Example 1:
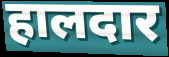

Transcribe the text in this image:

हालदार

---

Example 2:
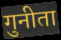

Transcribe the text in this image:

गुनीता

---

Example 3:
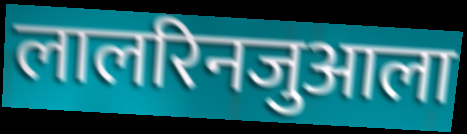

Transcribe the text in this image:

लालरिनजुआला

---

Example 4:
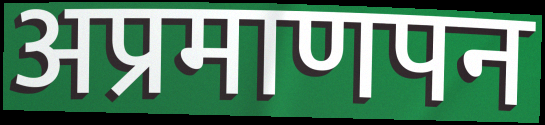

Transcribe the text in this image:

अप्रमाणपन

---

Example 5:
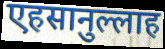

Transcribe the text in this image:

एहसानुल्लाह